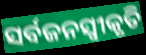
ସର୍ବଜନସ୍ୱୀକୃତି